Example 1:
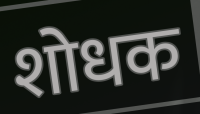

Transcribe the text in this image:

शोधक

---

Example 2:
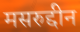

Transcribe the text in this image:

मसरुद्दीन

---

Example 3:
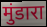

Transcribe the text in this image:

मुंडारा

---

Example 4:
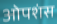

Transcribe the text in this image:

ओपशंस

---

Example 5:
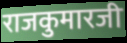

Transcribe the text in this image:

राजकुमारजी